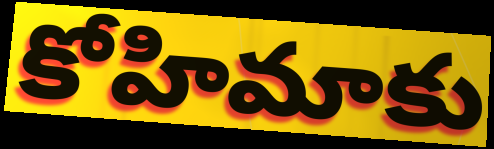
కోహిమాకు